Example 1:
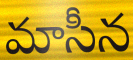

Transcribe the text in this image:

మాసీన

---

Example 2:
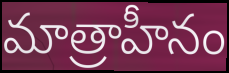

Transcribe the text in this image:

మాత్రాహీనం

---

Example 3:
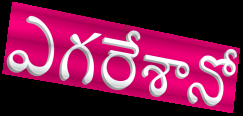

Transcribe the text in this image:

ఎగరేశానో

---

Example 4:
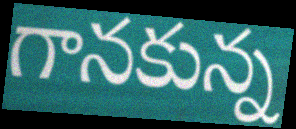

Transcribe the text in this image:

గానకున్న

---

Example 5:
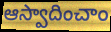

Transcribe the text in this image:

ఆస్వాదించాం